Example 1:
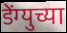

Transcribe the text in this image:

डेंग्युच्या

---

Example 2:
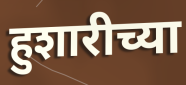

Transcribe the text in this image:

हुशारीच्या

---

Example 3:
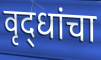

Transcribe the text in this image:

वृद्धांचा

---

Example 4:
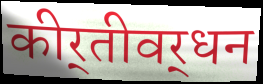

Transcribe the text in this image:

कीर्तीवर्धन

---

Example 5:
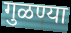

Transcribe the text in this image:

गुळण्या